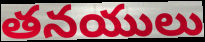
తనయులు